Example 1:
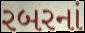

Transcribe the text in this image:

રબરનાં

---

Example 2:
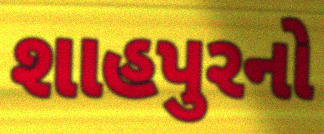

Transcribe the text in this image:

શાહપુરનો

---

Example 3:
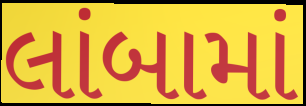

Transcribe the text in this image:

લાંબામાં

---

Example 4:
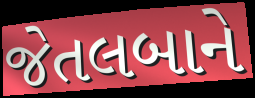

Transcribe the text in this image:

જેતલબાને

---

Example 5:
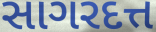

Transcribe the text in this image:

સાગરદત્ત